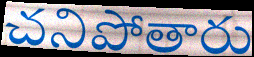
చనిపోతారు